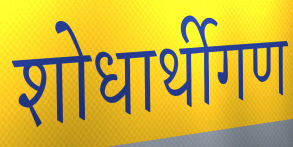
शोधार्थीगण